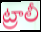
ట్రాలీ